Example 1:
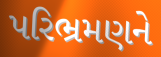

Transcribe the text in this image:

પરિભ્રમણને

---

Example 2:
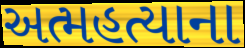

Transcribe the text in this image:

અત્મહત્યાના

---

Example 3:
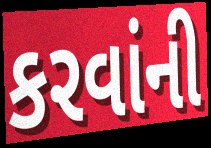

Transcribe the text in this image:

કરવાંની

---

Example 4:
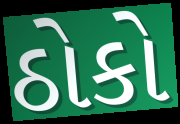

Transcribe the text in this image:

ઠોકો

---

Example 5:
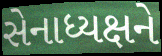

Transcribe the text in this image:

સેનાધ્યક્ષને